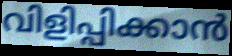
വിളിപ്പിക്കാൻ